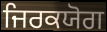
ਜਿਰਕਯੋਗ